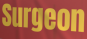
Surgeon